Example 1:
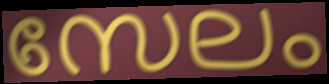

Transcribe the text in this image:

സേലം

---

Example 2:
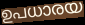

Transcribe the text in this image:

ഉപധാരയ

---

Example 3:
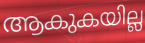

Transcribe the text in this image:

ആകുകയില്ല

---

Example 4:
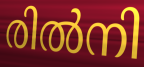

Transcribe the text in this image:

രിൽനി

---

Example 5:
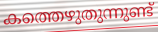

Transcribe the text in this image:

കത്തെഴുതുന്നുണ്ട്